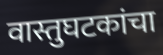
वास्तुघटकांचा